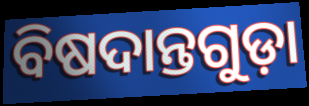
ବିଷଦାନ୍ତଗୁଡ଼ା